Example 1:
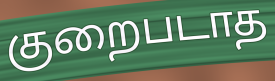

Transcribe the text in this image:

குறைபடாத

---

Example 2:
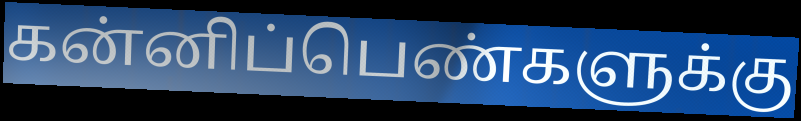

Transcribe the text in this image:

கன்னிப்பெண்களுக்கு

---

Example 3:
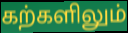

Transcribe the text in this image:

கற்களிலும்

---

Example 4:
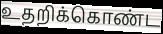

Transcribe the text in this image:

உதறிக்கொண்ட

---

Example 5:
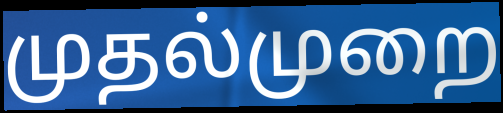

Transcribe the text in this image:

முதல்முறை